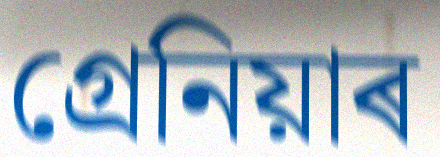
গ্ৰেনিয়াৰ